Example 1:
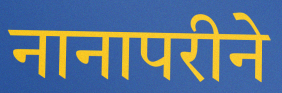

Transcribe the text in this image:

नानापरीने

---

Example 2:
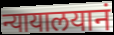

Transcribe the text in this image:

न्यायालयानं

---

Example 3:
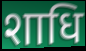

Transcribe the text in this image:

शाधि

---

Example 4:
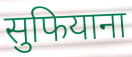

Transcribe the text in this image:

सुफियाना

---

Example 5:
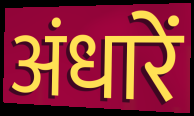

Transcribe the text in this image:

अंधारें